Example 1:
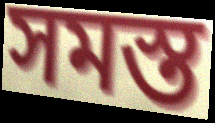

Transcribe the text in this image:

সমস্ত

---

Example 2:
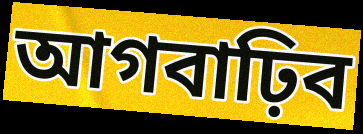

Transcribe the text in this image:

আগবাঢ়িব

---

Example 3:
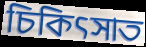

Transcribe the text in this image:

চিকিৎসাত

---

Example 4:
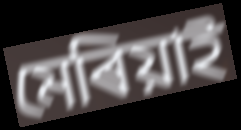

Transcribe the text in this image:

মেৰিয়াই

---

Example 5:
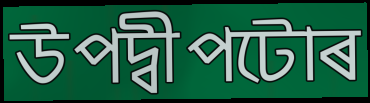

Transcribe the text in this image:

উপদ্বীপটোৰ